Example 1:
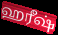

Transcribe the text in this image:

ஹரீஷ்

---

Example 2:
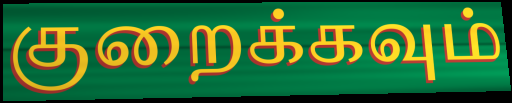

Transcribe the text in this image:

குறைக்கவும்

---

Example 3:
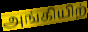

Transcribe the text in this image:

அங்கியிற்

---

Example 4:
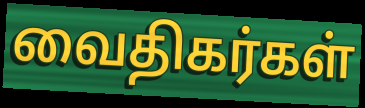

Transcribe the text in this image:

வைதிகர்கள்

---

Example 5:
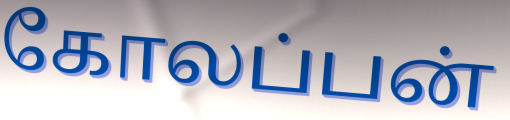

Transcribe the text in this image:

கோலப்பன்